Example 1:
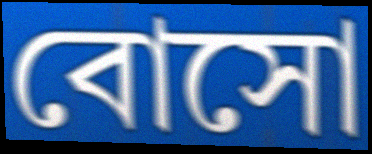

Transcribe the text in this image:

বোসো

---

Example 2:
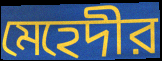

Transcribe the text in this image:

মেহেদীর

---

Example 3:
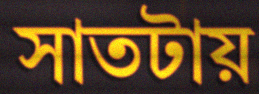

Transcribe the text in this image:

সাতটায়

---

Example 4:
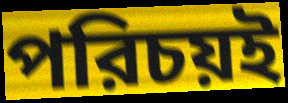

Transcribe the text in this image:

পরিচয়ই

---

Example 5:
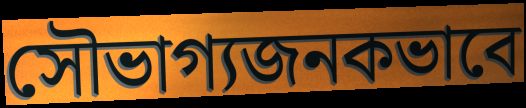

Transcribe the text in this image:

সৌভাগ্যজনকভাবে